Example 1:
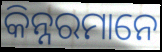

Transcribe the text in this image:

କିନ୍ନରମାନେ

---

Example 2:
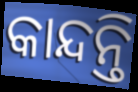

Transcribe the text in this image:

କାନ୍ଦନ୍ତି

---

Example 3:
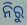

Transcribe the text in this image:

ନିରୁ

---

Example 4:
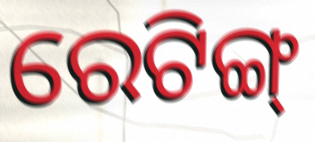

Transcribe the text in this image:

ରେଟିଙ୍ଗ୍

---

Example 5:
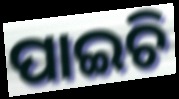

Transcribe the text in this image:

ପାଇଚି